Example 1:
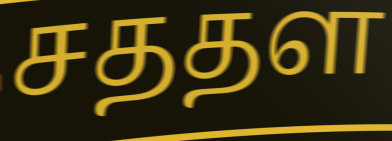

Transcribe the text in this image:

சததள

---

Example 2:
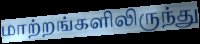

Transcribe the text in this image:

மாற்றங்களிலிருந்து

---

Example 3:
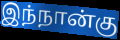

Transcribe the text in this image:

இந்நான்கு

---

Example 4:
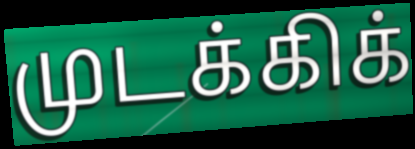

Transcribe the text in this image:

முடக்கிக்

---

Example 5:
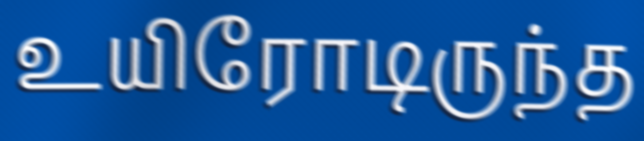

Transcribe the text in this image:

உயிரோடிருந்த